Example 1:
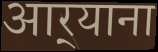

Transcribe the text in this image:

आर्याना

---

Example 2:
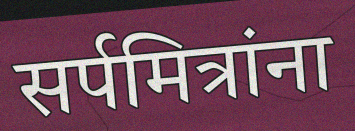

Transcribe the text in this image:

सर्पमित्रांना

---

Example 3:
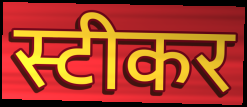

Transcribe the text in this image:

स्टीकर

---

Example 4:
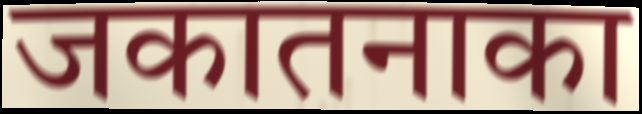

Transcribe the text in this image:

जकातनाका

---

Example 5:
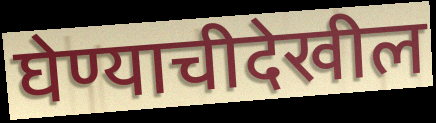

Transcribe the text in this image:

घेण्याचीदेखील